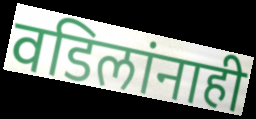
वडिलांनाही